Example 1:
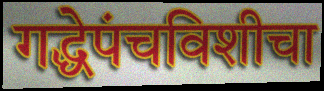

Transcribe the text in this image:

गद्धेपंचविशीचा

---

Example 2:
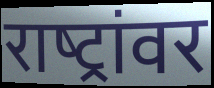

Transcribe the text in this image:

राष्ट्रांवर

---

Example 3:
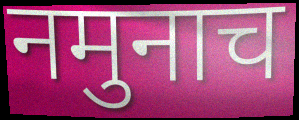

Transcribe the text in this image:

नमुनाच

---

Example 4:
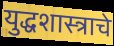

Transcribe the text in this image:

युद्धशास्त्राचे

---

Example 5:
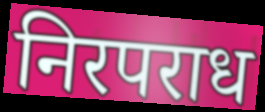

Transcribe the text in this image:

निरपराध